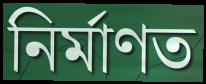
নিৰ্মাণত